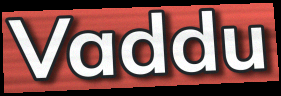
Vaddu